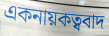
একনায়কত্ববাদ